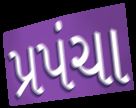
પ્રપંચા